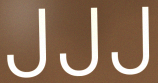
JJJ